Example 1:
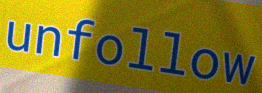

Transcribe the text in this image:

unfollow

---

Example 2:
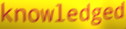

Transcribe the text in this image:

knowledged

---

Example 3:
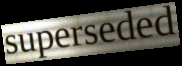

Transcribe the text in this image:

superseded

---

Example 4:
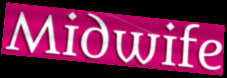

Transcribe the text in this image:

Midwife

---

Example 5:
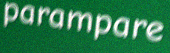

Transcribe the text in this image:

parampare